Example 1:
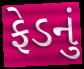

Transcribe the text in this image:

ફેડનું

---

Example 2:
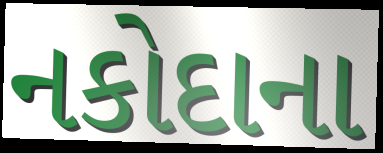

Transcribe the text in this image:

નકોદાના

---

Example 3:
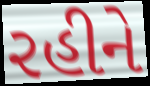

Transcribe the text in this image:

રહીને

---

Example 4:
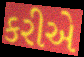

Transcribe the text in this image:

કરીએ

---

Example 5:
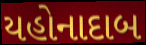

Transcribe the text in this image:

યહોનાદાબ